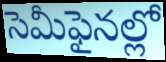
సెమీఫైనల్లో